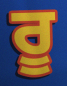
ਰੂ